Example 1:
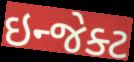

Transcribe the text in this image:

ઇન્જેક્ટ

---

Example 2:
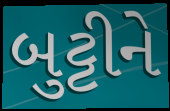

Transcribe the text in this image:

બુટ્ટીને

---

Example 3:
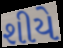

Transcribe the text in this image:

શીયે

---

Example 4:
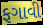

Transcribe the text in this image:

ફગાવી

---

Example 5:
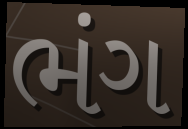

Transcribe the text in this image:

ભંગ